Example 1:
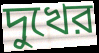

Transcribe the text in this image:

দুখের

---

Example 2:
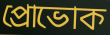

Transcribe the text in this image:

প্রোভোক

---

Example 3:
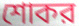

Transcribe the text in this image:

শোকর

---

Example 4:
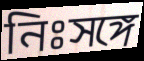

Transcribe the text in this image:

নিঃসঙ্গে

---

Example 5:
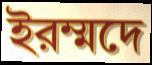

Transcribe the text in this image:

ইরম্মদে